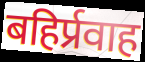
बहिर्प्रवाह